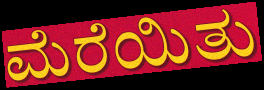
ಮೆರೆಯಿತು